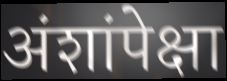
अंशांपेक्षा